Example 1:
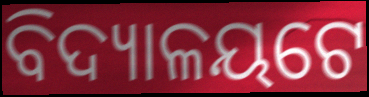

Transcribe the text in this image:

ବିଦ୍ୟାଳୟଟେ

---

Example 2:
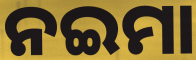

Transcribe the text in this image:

ନଇମା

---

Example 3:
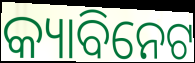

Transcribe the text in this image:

କ୍ୟାବିନେଟ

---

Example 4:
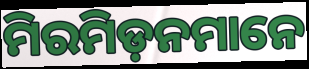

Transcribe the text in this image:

ମିରମିଡ଼ନମାନେ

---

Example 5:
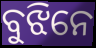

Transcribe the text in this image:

ବୁଝିନେ